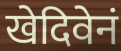
खेदिवेनं